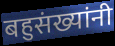
बहुसंख्यांनी